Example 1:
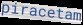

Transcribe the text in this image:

piracetam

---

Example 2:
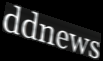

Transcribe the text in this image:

ddnews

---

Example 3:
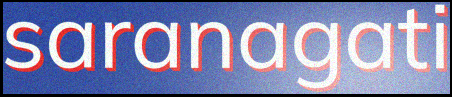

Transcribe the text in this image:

saranagati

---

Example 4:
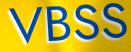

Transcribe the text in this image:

VBSS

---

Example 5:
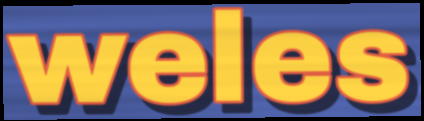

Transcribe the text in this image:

weles